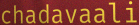
chadavaali